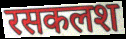
रसकलश